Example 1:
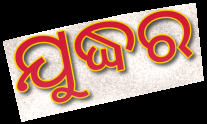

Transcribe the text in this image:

ଯୁଦ୍ଧର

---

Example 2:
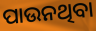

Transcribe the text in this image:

ପାଉନଥିବା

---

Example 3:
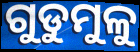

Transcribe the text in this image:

ଗୁଡୁମୁଳୁ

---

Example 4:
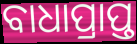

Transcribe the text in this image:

ବାଧାପ୍ରାପ୍ତ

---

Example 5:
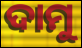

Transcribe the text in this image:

ଦାମୁ